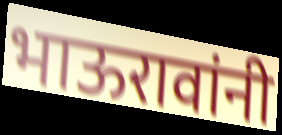
भाऊरावांनी